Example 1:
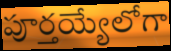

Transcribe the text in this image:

పూర్తయ్యేలోగా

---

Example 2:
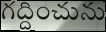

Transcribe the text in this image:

గద్దించును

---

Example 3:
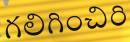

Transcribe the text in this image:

గలిగించిరి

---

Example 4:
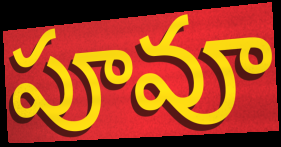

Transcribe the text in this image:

పూవూ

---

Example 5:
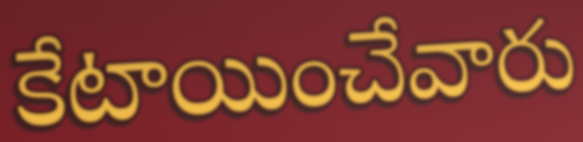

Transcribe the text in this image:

కేటాయించేవారు